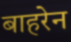
बाहरेन